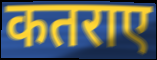
कतराए